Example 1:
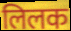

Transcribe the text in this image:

लिलक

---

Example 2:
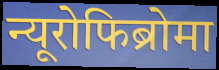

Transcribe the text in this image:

न्यूरोफिब्रोमा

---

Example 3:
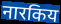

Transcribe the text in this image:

नारकिय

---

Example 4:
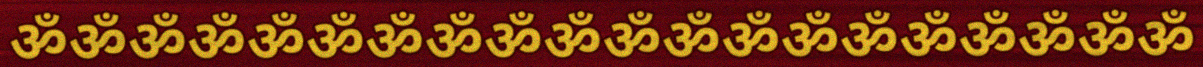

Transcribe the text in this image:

ॐॐॐॐॐॐॐॐॐॐॐॐॐॐॐॐॐॐॐॐ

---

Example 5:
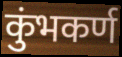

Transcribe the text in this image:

कुंभकर्ण